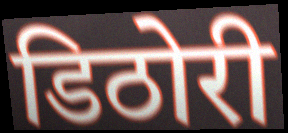
डिठोरी